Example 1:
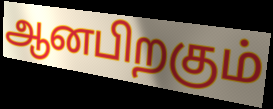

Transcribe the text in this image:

ஆனபிறகும்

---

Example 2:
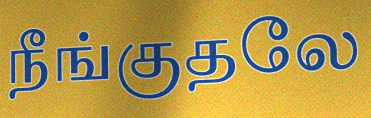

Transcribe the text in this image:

நீங்குதலே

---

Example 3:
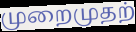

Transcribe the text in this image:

முறைமுதற்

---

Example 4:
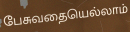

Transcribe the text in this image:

பேசுவதையெல்லாம்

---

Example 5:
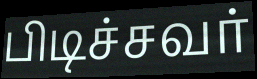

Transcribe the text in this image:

பிடிச்சவர்